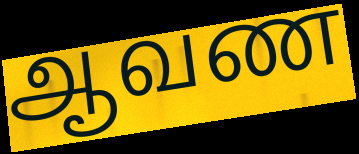
ஆவண